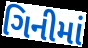
ગિનીમાં